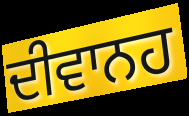
ਦੀਵਾਨਹ